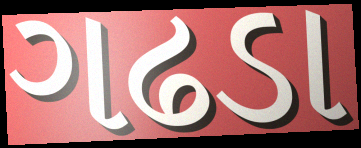
ગઢડા